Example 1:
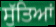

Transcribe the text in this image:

ਸੁੱਤਿਆਂ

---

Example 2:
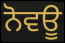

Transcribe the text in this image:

ਨੋਵਊ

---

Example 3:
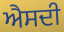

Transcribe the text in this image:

ਐਸਦੀ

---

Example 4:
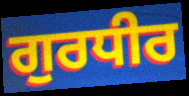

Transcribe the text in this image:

ਗੁਰਧੀਰ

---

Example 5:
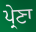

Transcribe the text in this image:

ਪ੍ਰੇਣਾ